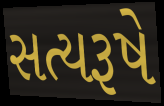
સત્યરૂષે